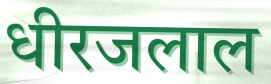
धीरजलाल